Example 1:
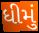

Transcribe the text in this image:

ધીમું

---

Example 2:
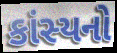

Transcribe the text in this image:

કાંસ્યનો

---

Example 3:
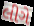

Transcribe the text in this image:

લીગે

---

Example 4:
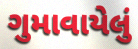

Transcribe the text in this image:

ગુમાવાયેલું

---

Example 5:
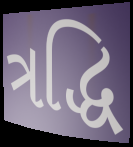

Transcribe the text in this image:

ત્રદ્ધિ